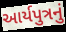
આર્યપુત્રનું